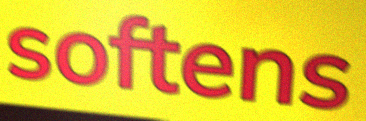
softens